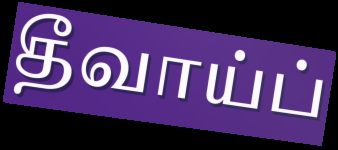
தீவாய்ப்